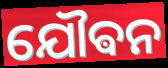
ଯୌଵନ